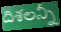
దిశలన్నీ